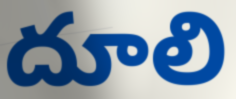
దూలి